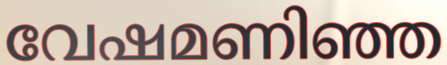
വേഷമണിഞ്ഞ